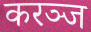
करञ्ज